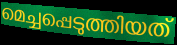
മെച്ചപ്പെടുത്തിയത്